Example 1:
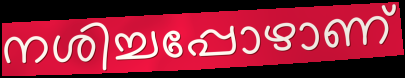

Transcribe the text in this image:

നശിച്ചപ്പോഴാണ്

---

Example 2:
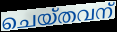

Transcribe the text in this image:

ചെയ്തവന്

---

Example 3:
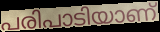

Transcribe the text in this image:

പരിപാടിയാണ്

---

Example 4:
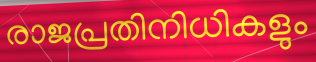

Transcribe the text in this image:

രാജപ്രതിനിധികളും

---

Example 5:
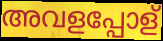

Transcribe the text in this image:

അവളപ്പോള്